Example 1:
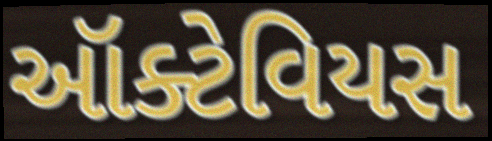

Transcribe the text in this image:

ઑક્ટેવિયસ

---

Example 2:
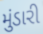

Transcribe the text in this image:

મુંડારી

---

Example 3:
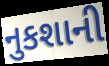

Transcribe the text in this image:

નુકશાની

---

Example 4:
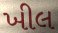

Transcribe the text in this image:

ખીલ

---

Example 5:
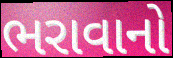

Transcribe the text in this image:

ભરાવાનો